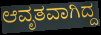
ಆವೃತವಾಗಿದ್ದ